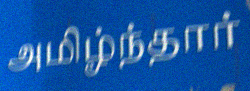
அமிழ்ந்தார்